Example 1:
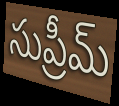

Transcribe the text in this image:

సుప్రీమ్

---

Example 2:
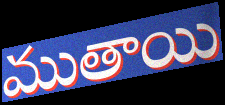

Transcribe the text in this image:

ముతాయి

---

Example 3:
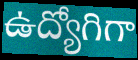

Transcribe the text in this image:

ఉద్యోగిగా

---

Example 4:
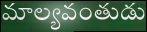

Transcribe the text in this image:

మాల్యవంతుడు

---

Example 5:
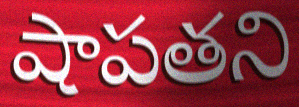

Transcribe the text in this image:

షాపతని